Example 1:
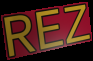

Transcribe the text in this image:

REZ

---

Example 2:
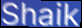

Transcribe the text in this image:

Shaik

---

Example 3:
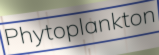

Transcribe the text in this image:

Phytoplankton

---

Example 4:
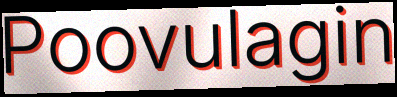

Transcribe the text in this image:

Poovulagin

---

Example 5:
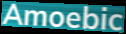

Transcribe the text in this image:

Amoebic